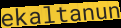
ekaltanun